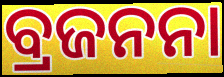
ବ୍ରଜନନା